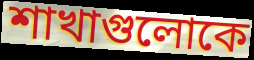
শাখাগুলোকে